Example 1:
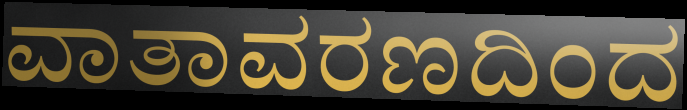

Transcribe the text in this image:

ವಾತಾವರಣದಿಂದ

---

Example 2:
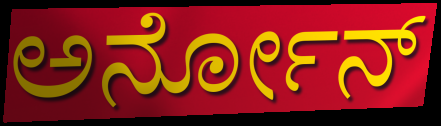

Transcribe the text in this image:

ಅರ್ನೋನ್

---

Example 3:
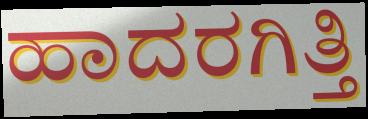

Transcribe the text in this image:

ಹಾದರಗಿತ್ತಿ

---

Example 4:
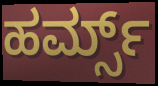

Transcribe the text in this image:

ಹರ್ಮ್ಸ್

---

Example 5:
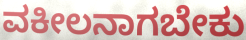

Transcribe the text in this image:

ವಕೀಲನಾಗಬೇಕು